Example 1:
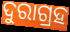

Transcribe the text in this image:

ଦୁରାଗ୍ରହ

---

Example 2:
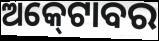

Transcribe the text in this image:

ଅକ୍‍ଟୋବର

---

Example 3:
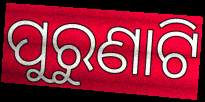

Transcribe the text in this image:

ପୁରୁଣାଟି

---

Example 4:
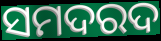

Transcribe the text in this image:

ସମଦରଦ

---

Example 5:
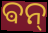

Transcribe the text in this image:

ଵନ୍